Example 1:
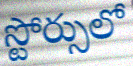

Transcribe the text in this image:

స్టోర్సులో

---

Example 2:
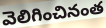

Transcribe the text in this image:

వెలిగించినంత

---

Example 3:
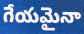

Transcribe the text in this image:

గేయమైనా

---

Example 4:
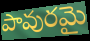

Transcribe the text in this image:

పావురమై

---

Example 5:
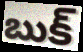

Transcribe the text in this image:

బుక్